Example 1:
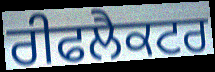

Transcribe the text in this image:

ਰੀਫਲੈਕਟਰ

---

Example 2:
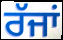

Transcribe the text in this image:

ਰੱਜਾਂ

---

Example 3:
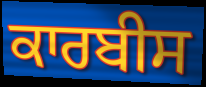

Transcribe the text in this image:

ਕਾਰਬੀਸ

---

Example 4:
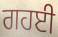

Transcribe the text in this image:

ਗਹਈ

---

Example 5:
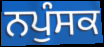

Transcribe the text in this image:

ਨਪੁੰਸਕ